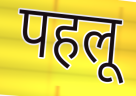
पहलू